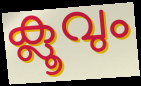
ക്ലൂവും